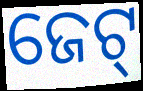
ଜେଟ୍